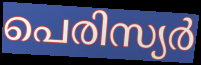
പെരിസ്യർ